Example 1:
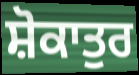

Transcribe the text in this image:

ਸ਼ੋਕਾਤੁਰ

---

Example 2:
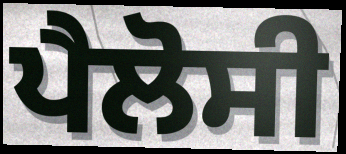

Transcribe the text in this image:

ਪੈਲੋਸੀ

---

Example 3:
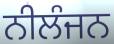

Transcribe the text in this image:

ਨੀਲੰਜਨ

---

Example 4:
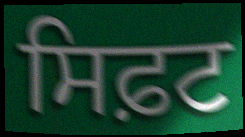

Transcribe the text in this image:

ਸਿਫ਼ਟ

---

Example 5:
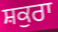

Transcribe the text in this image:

ਸ਼ਕੁਰਾ